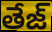
తేజ్